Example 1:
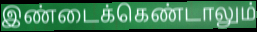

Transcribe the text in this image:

இண்டைக்கெண்டாலும்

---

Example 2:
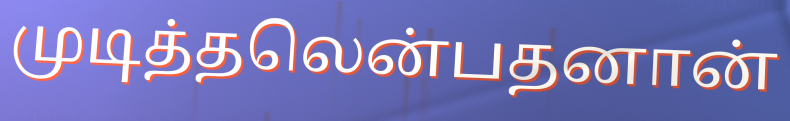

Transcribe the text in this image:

முடித்தலென்பதனான்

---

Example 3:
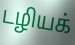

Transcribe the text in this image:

டழியக்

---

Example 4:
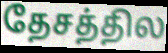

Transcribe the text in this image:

தேசத்தில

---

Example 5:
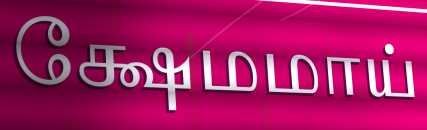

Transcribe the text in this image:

க்ஷேமமாய்